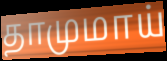
தாமுமாய்